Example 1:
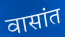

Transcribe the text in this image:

वासांत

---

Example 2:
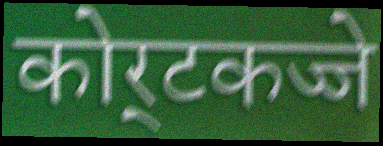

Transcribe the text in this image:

कोर्टकज्जे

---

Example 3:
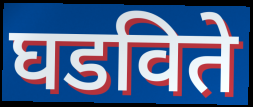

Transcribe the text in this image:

घडविते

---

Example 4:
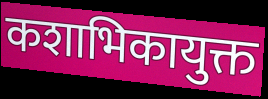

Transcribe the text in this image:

कशाभिकायुक्त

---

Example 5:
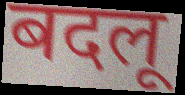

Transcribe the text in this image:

बदलू